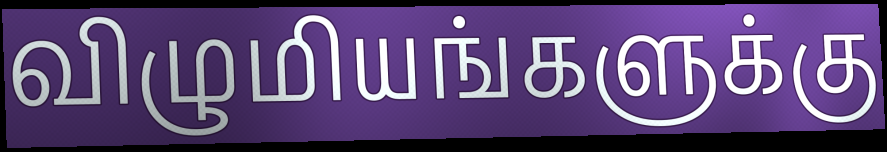
விழுமியங்களுக்கு